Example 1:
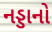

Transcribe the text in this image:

નડ્ડાનો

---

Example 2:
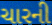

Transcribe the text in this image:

ચારની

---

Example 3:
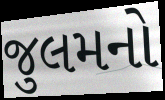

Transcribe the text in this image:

જુલમનો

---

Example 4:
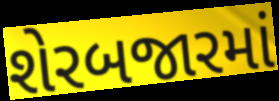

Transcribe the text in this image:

શેરબજારમાં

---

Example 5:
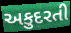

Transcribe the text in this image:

અકુદરતી